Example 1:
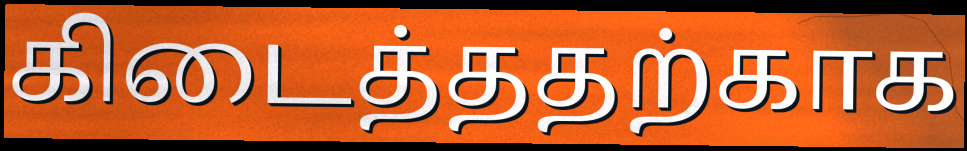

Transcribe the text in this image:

கிடைத்ததற்காக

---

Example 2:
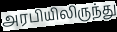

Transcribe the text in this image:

அரபியிலிருந்து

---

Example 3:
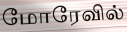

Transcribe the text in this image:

மோரேவில்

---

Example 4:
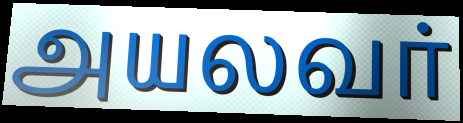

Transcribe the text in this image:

அயலவர்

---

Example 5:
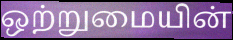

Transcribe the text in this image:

ஒற்றுமையின்